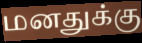
மனதுக்கு